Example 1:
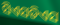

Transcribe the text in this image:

ସିଏସଡିଏସ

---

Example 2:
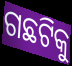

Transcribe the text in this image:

ଗଛଟିକୁ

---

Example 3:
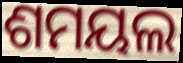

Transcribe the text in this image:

ଶମୟଲ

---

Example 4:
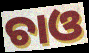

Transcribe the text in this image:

ଚାଓ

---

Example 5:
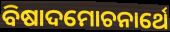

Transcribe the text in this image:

ବିଷାଦମୋଚନାର୍ଥେ